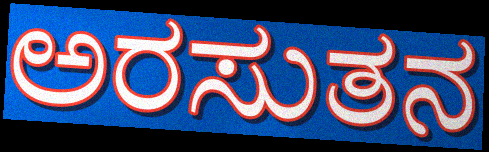
ಅರಸುತನ